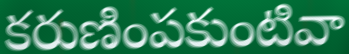
కరుణింపకుంటివా